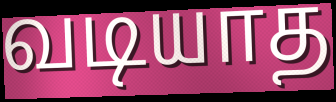
வடியாத